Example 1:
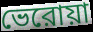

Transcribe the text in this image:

ভেরোয়া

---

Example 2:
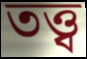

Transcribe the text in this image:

তত্ত্ব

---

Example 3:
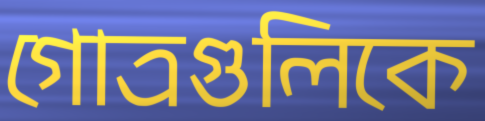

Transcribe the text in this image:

গোত্রগুলিকে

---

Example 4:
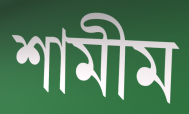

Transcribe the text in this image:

শামীম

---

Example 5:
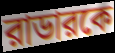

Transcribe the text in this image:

রাডারকে